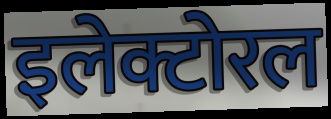
इलेक्टोरल